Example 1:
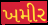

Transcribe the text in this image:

ખમીર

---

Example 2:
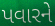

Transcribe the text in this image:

પવારને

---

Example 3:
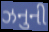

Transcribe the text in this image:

ઝનુની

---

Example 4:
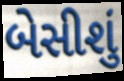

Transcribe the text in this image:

બેસીશું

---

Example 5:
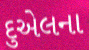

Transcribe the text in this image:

દુએલના